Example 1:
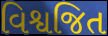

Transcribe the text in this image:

વિશ્વજિત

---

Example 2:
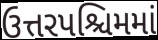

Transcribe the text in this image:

ઉત્તરપશ્ચિમમાં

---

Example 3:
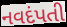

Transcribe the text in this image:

નવદંપતી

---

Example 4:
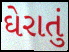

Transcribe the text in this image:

ઘેરાતું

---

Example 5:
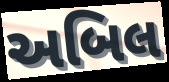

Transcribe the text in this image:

અબિલ